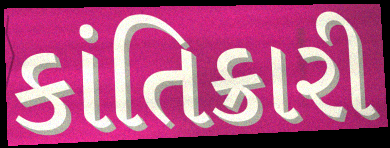
કાંતિક્રારી